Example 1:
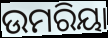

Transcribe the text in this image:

ଉମରିୟା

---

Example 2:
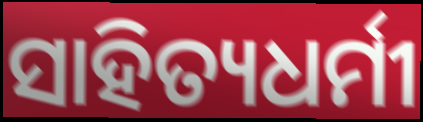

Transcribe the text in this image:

ସାହିତ୍ୟଧର୍ମୀ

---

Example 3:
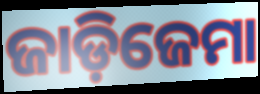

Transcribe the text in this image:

ଜାଡ଼ିଜେମା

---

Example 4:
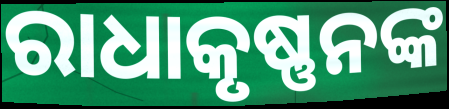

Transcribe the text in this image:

ରାଧାକୃଷ୍ଣନଙ୍କ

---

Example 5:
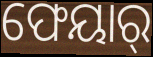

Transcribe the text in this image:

ଫେୟାର୍